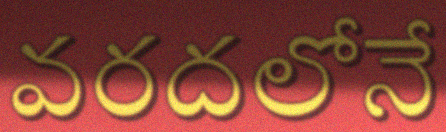
వరదలోనే